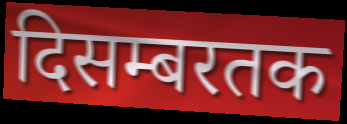
दिसम्बरतक